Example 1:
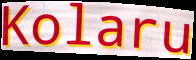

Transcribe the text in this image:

Kolaru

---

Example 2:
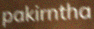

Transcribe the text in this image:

pakirntha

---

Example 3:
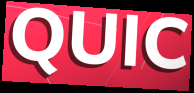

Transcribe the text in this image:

QUIC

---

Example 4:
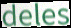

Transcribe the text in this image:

deles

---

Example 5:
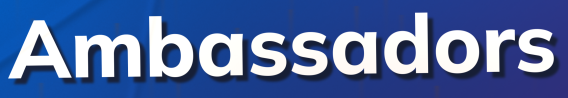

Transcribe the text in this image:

Ambassadors